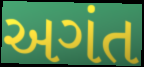
અગંત